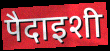
पैदाइशी